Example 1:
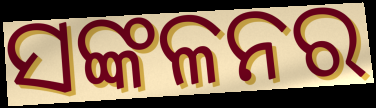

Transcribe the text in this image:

ସଙ୍କଳନର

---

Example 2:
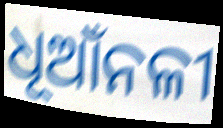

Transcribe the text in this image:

ଧୂଆଁନଳୀ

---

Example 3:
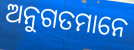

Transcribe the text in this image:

ଅନୁଗତମାନେ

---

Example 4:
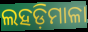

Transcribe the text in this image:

ଲହଡ଼ିମାଳା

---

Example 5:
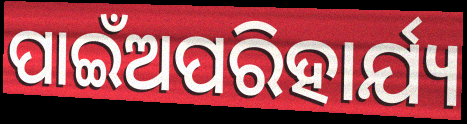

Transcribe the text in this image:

ପାଇଁଅପରିହାର୍ଯ୍ୟ